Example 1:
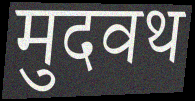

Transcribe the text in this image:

मुदवथ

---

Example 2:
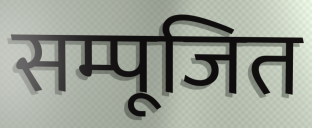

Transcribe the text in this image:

सम्पूजित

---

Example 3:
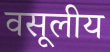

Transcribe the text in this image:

वसूलीय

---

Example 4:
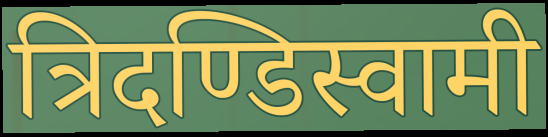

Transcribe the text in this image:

त्रिदण्डिस्वामी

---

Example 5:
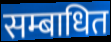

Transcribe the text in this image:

सम्बाधित